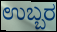
ಉಬ್ಬರ